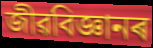
জীৱবিজ্ঞানৰ